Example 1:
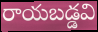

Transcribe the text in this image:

రాయబడ్డవి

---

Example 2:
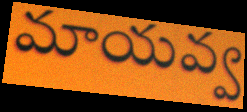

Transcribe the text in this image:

మాయవ్వ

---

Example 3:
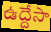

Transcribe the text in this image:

ఉద్దేసా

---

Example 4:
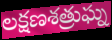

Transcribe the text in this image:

లక్షణశత్రుఘ్న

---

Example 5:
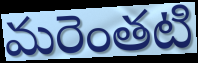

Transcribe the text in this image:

మరెంతటి